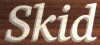
Skid